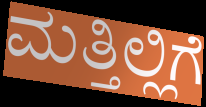
ಮತ್ತಿಲ್ಲಿಗೆ